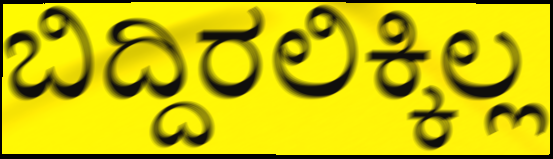
ಬಿದ್ದಿರಲಿಕ್ಕಿಲ್ಲ